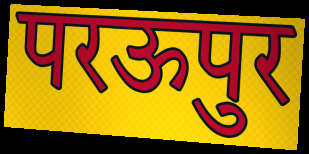
परऊपुर